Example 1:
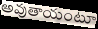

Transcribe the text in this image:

అవుతాయంటూ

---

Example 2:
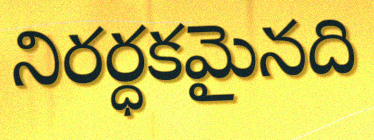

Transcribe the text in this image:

నిరర్ధకమైనది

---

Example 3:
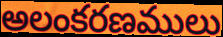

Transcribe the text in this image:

అలంకరణములు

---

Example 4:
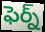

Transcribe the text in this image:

ఫెర్న్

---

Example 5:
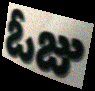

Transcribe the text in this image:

ఓజు